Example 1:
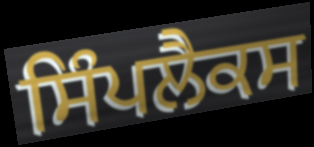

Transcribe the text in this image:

ਸਿੰਪਲੈਕਸ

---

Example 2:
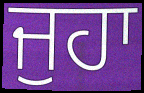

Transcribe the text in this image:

ਜੁਹਾ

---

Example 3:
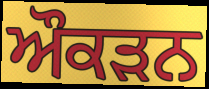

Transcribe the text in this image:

ਔਕੜਨ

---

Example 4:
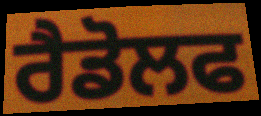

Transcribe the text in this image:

ਰੈਡੋਲਫ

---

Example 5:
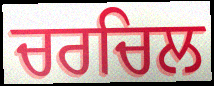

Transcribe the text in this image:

ਚਰਚਿਲ